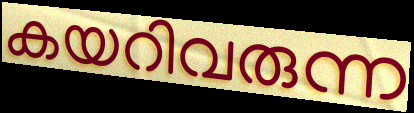
കയറിവരുന്ന